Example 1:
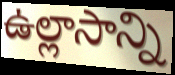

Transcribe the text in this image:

ఉల్లాసాన్ని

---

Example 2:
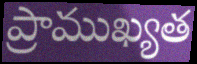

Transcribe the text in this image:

ప్రాముఖ్యత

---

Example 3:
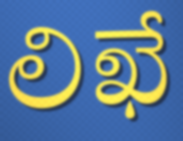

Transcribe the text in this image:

లిఖే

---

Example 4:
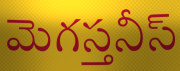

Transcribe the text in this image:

మెగస్తనీస్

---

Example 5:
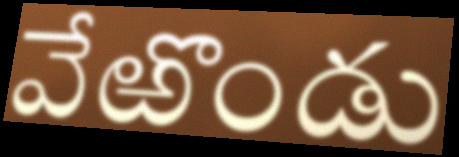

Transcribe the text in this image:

వేఱొండు